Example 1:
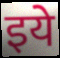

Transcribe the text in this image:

इये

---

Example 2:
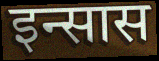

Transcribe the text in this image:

इन्सास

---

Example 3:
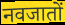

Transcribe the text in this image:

नवजातों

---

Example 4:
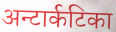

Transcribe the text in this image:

अन्टार्कटिका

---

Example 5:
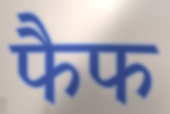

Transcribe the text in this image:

फैफ